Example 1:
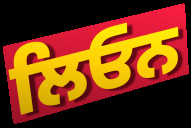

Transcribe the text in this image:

ਲਿਓਨ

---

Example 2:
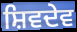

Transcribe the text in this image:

ਸ਼ਿਵਦੇਵ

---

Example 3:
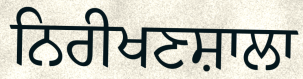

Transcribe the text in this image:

ਨਿਰੀਖਣਸ਼ਾਲਾ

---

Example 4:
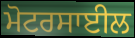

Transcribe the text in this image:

ਮੋਟਰਸਾਈਲ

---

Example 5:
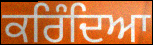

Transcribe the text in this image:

ਕਰਿੰਦਿਆ